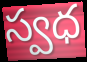
స్వధ